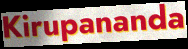
Kirupananda